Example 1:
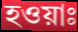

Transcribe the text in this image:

হওয়াঃ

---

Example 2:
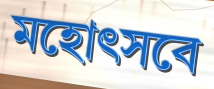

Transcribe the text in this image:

মহোৎসবে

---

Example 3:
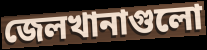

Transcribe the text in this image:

জেলখানাগুলো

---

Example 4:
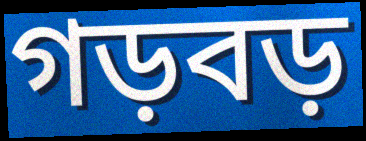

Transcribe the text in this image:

গড়বড়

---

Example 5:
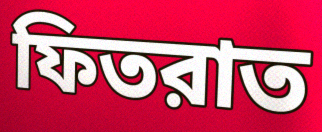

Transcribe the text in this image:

ফিতরাত